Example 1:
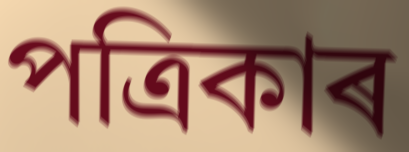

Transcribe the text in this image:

পত্ৰিকাৰ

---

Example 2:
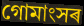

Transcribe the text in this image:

গোমাংসৰ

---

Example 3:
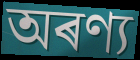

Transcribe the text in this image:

অৰণ্য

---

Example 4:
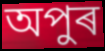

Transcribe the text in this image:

অপুৰ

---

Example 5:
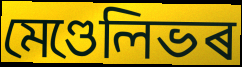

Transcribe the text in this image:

মেণ্ডেলিভৰ